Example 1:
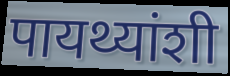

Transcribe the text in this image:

पायथ्यांशी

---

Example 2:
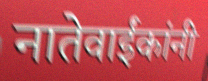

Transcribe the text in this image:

नातेवाईंकांनी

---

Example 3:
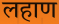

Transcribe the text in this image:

लहाण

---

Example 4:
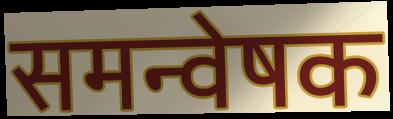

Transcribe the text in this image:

समन्वेषक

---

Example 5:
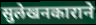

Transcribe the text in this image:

सुलेखनकाराने